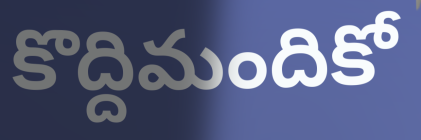
కొద్దిమందికో